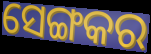
ସେଙ୍ଗକର